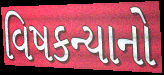
વિષકન્યાનો